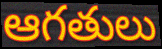
ఆగతులు